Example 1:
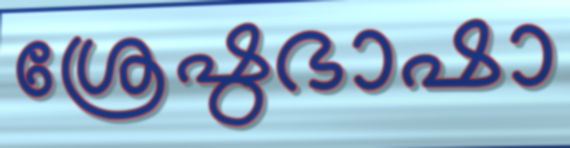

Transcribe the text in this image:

ശ്രേഷ്ഠഭാഷാ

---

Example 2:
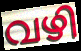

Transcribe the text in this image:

വഴി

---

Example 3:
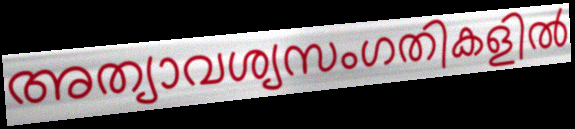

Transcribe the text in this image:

അത്യാവശ്യസംഗതികളിൽ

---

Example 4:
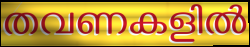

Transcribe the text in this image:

തവണകളിൽ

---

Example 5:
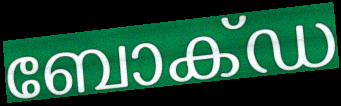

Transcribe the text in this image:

ബോക്ഡ